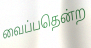
வைப்பதென்ற